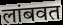
लांबवत